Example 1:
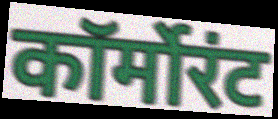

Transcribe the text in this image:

कॉर्मोरंट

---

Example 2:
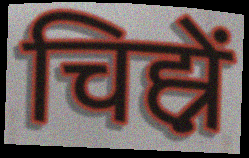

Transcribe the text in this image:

चिह्नें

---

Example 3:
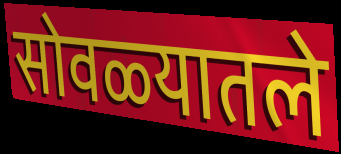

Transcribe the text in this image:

सोवळ्यातले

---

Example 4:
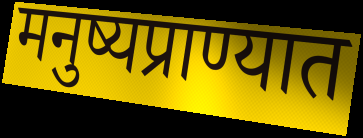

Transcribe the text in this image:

मनुष्यप्राण्यात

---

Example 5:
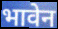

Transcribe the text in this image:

भावेन